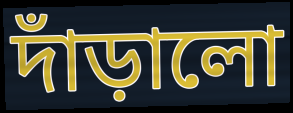
দাঁড়ালো